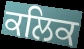
ਕਲਿਕ